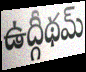
ఉద్గీథమ్